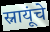
स्नायूंचे